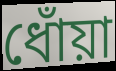
ধোঁয়া